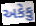
અકેકુ